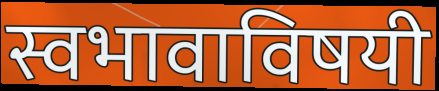
स्वभावाविषयी